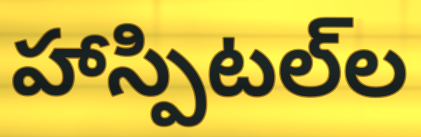
హాస్పిటల్‌ల